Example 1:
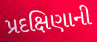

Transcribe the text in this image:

પ્રદક્ષિણાની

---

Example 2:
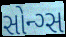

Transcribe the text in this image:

સોન્ગ્સ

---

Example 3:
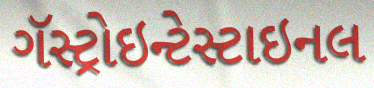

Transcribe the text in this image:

ગૅસ્ટ્રોઇન્ટેસ્ટાઇનલ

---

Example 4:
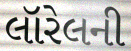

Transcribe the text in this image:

લૉરેલની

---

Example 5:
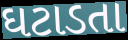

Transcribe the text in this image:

ઘટાડતા